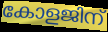
കോളജിന്